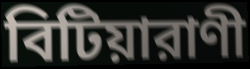
বিটিয়ারাণী